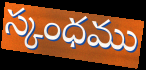
స్కంధము